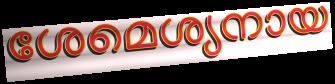
ശേമെശ്യനായ